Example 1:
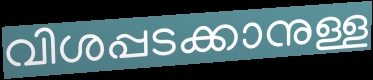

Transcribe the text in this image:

വിശപ്പടക്കാനുള്ള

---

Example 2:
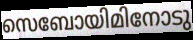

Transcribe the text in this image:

സെബോയിമിനോടു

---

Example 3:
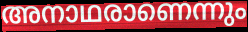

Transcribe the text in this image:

അനാഥരാണെന്നും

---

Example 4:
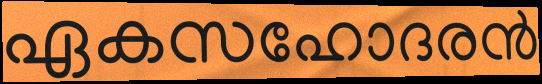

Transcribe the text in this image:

ഏകസഹോദരൻ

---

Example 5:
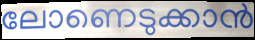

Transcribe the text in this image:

ലോണെടുക്കാൻ